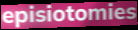
episiotomies